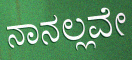
ನಾನಲ್ಲವೇ